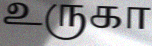
உருகா